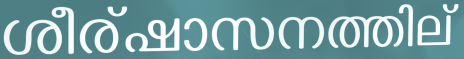
ശീര്ഷാസനത്തില്